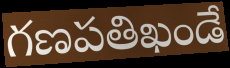
గణపతిఖండే